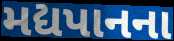
મદ્યપાનના